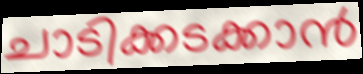
ചാടിക്കടക്കാൻ